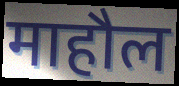
माहौल